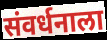
संवर्धनाला